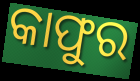
କାଫୁର